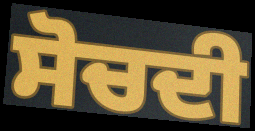
ਸੋਚਦੀ